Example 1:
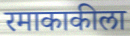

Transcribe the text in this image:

रमाकाकीला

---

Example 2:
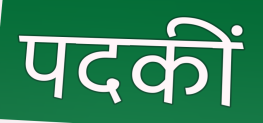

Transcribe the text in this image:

पदकीं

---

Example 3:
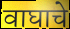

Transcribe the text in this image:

वाघाचे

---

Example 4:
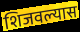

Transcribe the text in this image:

शिजवल्यास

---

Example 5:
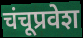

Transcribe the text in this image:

चंचूप्रवेश